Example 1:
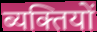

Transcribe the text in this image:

ब्यक्तियों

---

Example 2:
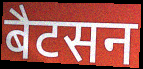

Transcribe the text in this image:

बैटसन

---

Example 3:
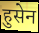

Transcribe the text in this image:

हुसेन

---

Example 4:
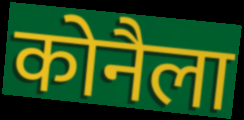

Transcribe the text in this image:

कोनैला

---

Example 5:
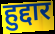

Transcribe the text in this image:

हुद्दार